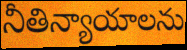
నీతిన్యాయాలను